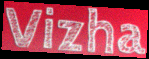
Vizha